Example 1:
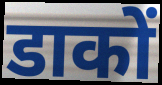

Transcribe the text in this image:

डाकों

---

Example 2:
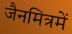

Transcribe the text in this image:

जैनमित्रमें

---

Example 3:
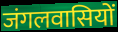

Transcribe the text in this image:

जंगलवासियों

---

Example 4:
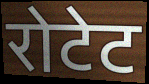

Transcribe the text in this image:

रोटेट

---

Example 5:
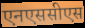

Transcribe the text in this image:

एनएससीएस